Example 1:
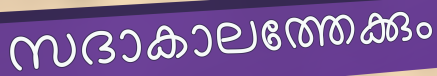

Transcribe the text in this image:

സദാകാലത്തേക്കും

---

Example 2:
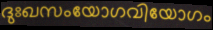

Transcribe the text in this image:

ദുഃഖസംയോഗവിയോഗം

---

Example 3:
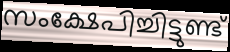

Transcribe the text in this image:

സംക്ഷേപിച്ചിട്ടുണ്ട്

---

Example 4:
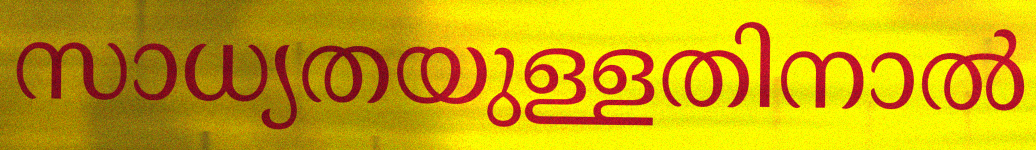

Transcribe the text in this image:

സാധ്യതയുള്ളതിനാൽ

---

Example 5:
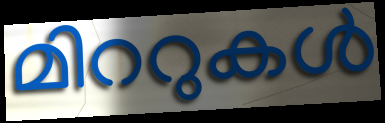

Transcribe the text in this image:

മിററുകൾ